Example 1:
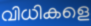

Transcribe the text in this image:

വിധികളെ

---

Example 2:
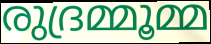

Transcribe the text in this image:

രുദ്രമ്മൂമ്മ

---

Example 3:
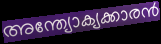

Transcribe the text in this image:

അന്ത്യോക്യക്കാരൻ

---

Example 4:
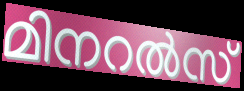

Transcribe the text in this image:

മിനറൽസ്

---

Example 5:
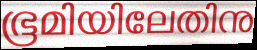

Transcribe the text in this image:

ഭൂമിയിലേതിനു